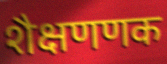
शैक्षणणक